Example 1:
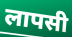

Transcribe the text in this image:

लापसी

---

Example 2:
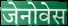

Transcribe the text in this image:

जेनोवेस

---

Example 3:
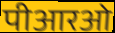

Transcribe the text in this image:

पीआरओ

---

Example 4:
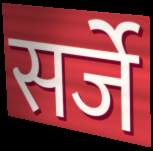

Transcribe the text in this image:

सर्जे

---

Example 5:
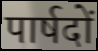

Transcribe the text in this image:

पार्षदों